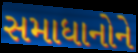
સમાધાનોને